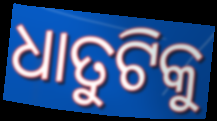
ଧାତୁଟିକୁ